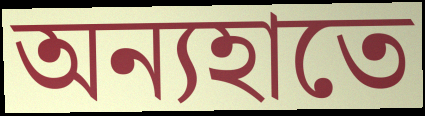
অন্যহাতে